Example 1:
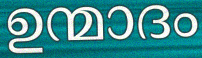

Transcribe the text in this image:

ഉന്മാദം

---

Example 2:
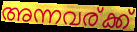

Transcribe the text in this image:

അന്നവര്ക്ക്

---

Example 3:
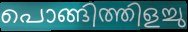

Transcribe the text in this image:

പൊങ്ങിത്തിളച്ചു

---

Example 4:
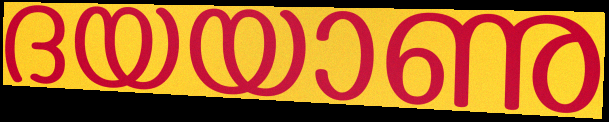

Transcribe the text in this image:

ദയയാണു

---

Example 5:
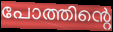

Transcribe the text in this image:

പോത്തിന്റെ